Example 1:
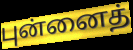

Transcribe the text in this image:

புன்னைத்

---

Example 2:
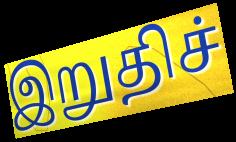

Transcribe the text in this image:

இறுதிச்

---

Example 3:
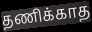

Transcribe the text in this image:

தணிக்காத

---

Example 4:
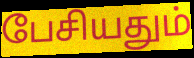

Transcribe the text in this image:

பேசியதும்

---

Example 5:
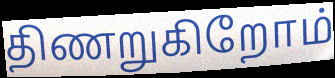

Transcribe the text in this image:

திணறுகிறோம்